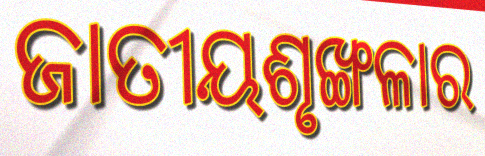
ଜାତୀୟଶୃଙ୍ଖଳାର